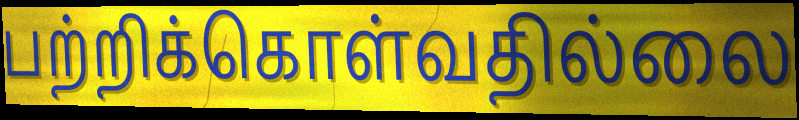
பற்றிக்கொள்வதில்லை